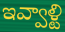
ఇవ్వాళ్టి